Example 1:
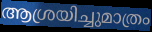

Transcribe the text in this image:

ആശ്രയിച്ചുമാത്രം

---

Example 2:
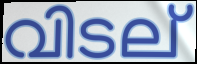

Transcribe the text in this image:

വിടല്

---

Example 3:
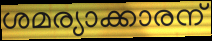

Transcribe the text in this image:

ശമര്യാക്കാരന്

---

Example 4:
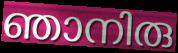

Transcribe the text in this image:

ഞാനിരു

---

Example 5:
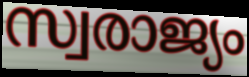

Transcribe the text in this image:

സ്വരാജ്യം